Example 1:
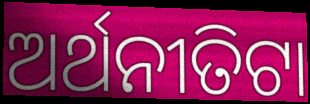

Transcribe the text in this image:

ଅର୍ଥନୀତିଟା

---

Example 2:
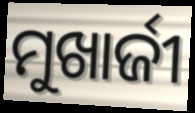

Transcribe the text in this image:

ମୁଖାର୍ଜୀ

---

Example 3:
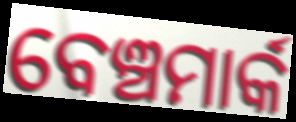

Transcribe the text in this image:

ବେଞ୍ଚମାର୍କ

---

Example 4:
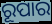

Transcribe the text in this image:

ରୂପାର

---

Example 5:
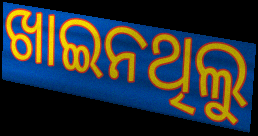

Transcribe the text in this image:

ଖାଇନଥିଲୁ